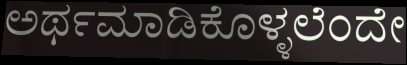
ಅರ್ಥಮಾಡಿಕೊಳ್ಳಲೆಂದೇ